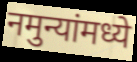
नमुन्यांमध्ये